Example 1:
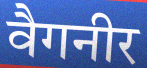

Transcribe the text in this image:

वैगनीर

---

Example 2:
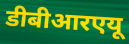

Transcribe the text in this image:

डीबीआरएयू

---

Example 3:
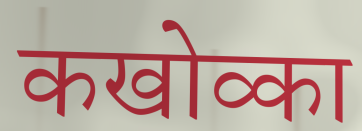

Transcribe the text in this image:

कखोव्का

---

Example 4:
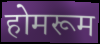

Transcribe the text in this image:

होमरूम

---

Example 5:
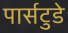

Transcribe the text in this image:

पार्सटुडे